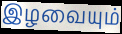
இழவையும்